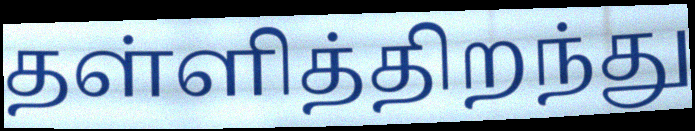
தள்ளித்திறந்து